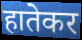
हातेकर